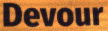
Devour